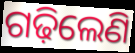
ଗଢ଼ିଲେଣି